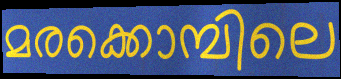
മരക്കൊമ്പിലെ